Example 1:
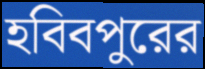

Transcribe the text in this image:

হবিবপুরের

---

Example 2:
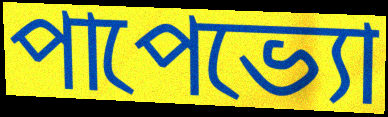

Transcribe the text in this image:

পাপেভ্যো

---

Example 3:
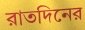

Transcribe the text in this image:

রাতদিনের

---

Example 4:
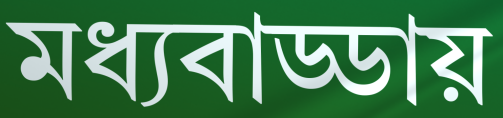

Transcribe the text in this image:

মধ্যবাড্ডায়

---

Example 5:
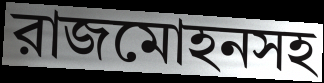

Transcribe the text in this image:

রাজমোহনসহ